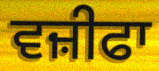
ਵਜ਼ੀਫਾ